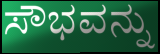
ಸೌಭವನ್ನು